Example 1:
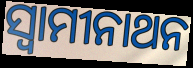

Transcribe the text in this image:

ସ୍ବାମୀନାଥନ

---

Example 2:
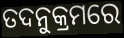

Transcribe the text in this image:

ତଦନୁକ୍ରମରେ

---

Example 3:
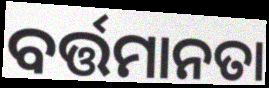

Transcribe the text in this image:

ବର୍ତ୍ତମାନତା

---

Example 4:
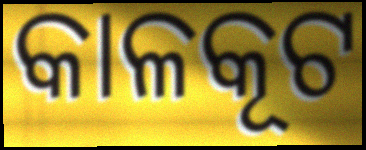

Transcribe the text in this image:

କାଳକୂଟ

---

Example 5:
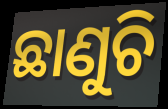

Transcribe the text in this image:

ଛାଣୁଚି